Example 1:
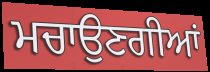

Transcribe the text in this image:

ਮਚਾਉਣਗੀਆਂ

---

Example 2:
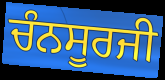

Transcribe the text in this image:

ਚੰਨਸੂਰਜੀ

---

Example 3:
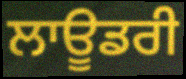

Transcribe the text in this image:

ਲਾਊਡਰੀ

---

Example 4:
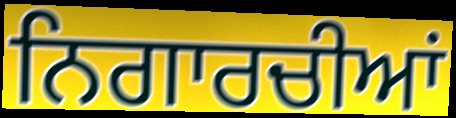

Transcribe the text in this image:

ਨਿਗਾਰਚੀਆਂ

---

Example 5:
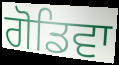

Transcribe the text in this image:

ਗੋਡਿਵਾ